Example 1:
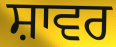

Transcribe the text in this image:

ਸ਼ਾਵਰ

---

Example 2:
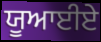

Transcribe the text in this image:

ਯੂਆਈਏ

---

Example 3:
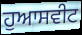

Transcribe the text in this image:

ਹੁਆਸਵੀਟ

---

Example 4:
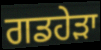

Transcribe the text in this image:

ਗਡਹੇੜਾ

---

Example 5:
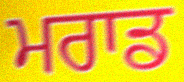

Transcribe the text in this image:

ਮਰਾਡ